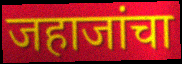
जहाजांचा